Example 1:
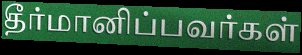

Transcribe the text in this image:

தீர்மானிப்பவர்கள்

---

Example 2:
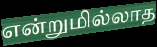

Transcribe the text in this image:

என்றுமில்லாத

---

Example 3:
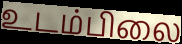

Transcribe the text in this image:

உடம்பிலை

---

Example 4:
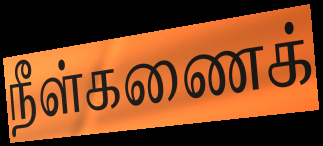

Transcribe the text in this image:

நீள்கணைக்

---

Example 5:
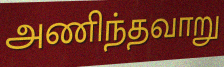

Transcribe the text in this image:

அணிந்தவாறு